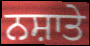
ਨਸ਼ਾਤੇ